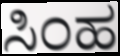
ಸಿಂಹ